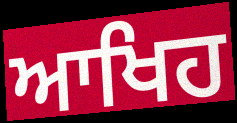
ਆਖਿਹ